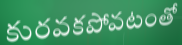
కురవకపోవటంతో